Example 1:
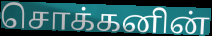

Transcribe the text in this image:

சொக்கனின்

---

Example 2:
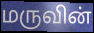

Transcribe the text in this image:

மருவின்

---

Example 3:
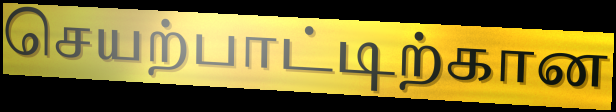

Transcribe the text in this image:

செயற்பாட்டிற்கான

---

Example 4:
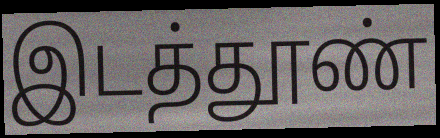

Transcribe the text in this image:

இடத்தூண்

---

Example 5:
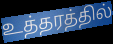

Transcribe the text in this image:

உத்தரத்தில்